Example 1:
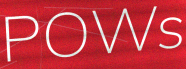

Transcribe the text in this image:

POWs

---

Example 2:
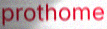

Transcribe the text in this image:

prothome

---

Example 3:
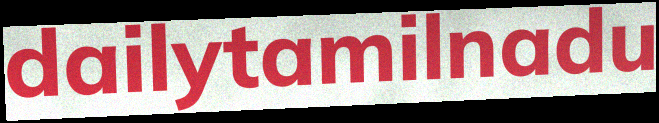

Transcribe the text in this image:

dailytamilnadu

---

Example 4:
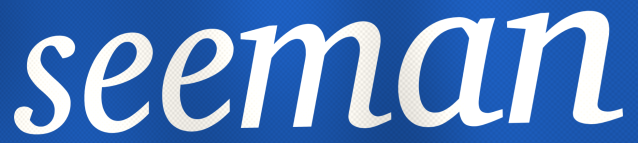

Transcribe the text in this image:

seeman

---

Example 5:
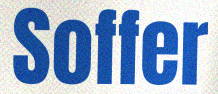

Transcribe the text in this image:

Soffer